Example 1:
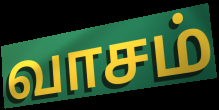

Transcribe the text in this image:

வாசம்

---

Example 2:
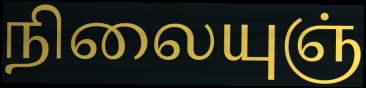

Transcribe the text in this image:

நிலையுஞ்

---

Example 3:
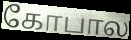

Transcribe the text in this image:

கோபால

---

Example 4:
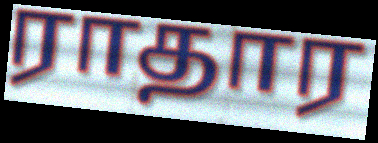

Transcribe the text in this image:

ராதார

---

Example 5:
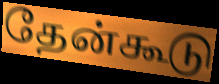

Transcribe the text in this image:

தேன்கூடு